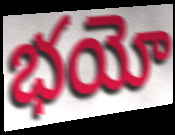
భయో